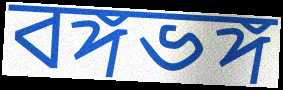
বঙ্গভঙ্গ